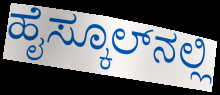
ಹೈಸ್ಕೂಲ್‌ನಲ್ಲಿ